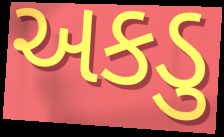
અકડુ